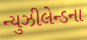
ન્યુઝીલેન્ડના